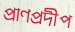
প্রাণপ্রদীপ